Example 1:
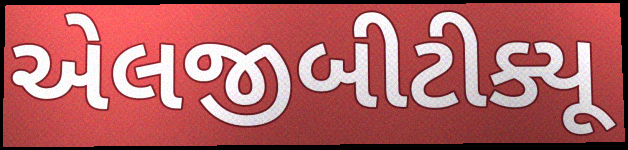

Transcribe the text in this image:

એલજીબીટીક્યૂ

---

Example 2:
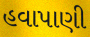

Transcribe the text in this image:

હવાપાણી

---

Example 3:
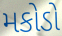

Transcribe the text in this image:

મકોડો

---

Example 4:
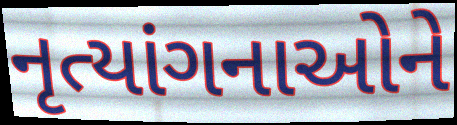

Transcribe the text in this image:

નૃત્યાંગનાઓને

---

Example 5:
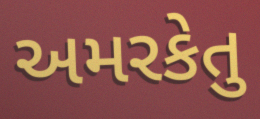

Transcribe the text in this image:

અમરકેતુ